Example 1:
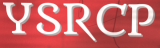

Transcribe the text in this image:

YSRCP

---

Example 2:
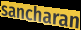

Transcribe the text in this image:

sancharan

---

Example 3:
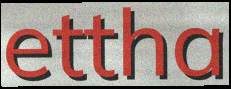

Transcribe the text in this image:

ettha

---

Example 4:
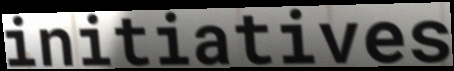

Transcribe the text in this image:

initiatives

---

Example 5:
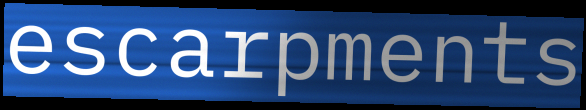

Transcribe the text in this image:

escarpments